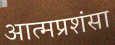
आत्मप्रशंसा